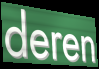
deren